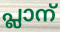
പ്ലാന്